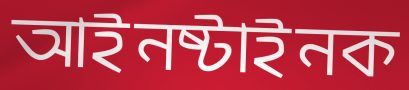
আইনষ্টাইনক